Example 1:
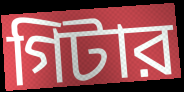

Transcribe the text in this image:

গিটার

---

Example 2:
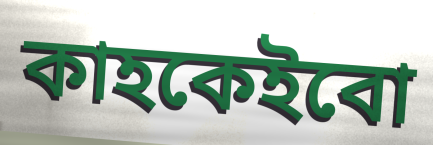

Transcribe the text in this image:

কাহকেইবো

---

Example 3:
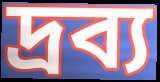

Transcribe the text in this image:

দ্রব্য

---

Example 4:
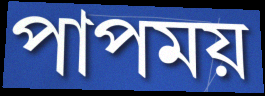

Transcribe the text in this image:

পাপময়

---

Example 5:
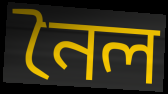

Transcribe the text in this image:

নৈল